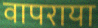
वापराया